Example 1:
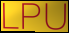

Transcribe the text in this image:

LPU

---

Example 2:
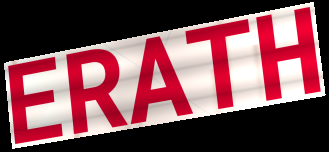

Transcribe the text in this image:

ERATH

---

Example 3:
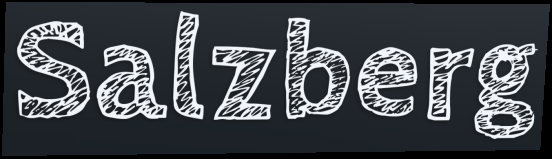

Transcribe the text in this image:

Salzberg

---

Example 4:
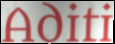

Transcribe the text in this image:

Aditi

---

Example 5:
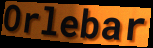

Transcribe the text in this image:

Orlebar